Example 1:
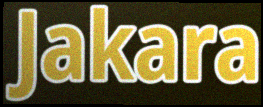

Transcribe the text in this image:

Jakara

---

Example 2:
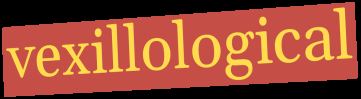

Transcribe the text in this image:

vexillological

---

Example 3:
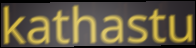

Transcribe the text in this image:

kathastu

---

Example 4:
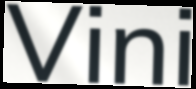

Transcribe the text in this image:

Vini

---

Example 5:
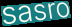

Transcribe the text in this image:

sasro